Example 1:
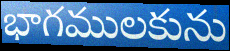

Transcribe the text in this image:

భాగములకును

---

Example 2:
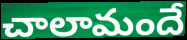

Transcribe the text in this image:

చాలామందే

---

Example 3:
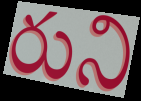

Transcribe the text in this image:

రుని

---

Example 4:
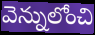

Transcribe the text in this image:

వెన్నులోంచి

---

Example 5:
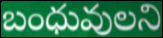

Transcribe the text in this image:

బంధువులని